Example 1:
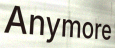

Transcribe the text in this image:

Anymore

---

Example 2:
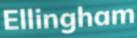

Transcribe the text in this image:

Ellingham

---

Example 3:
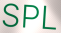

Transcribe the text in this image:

SPL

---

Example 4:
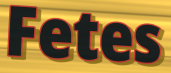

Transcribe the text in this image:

Fetes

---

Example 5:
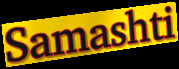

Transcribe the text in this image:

Samashti